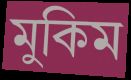
মুকিম